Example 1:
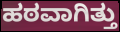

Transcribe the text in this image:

ಹಠವಾಗಿತ್ತು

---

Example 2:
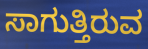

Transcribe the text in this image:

ಸಾಗುತ್ತಿರುವ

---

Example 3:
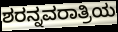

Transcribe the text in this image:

ಶರನ್ನವರಾತ್ರಿಯ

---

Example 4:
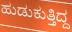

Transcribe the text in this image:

ಹುಡುಕುತ್ತಿದ್ದ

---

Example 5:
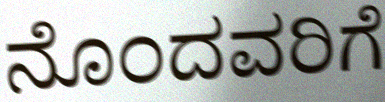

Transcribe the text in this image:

ನೊಂದವರಿಗೆ